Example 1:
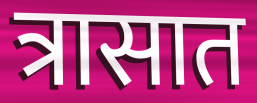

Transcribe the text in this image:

त्रासात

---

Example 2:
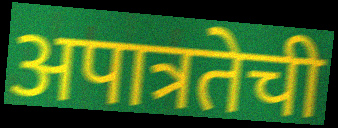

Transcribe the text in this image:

अपात्रतेची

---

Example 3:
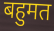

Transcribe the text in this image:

बहुमत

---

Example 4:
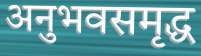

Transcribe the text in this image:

अनुभवसमृद्ध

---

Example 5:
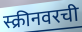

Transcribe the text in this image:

स्क्रीनवरची